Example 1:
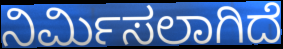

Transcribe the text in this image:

ನಿರ್ಮಿಸಲಾಗಿದೆ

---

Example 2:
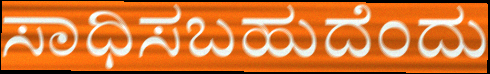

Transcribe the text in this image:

ಸಾಧಿಸಬಹುದೆಂದು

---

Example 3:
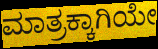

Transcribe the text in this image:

ಮಾತ್ರಕ್ಕಾಗಿಯೇ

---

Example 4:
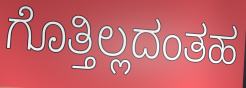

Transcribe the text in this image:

ಗೊತ್ತಿಲ್ಲದಂತಹ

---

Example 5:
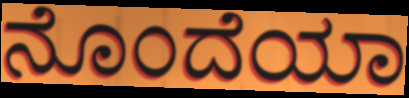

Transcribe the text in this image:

ನೊಂದೆಯಾ